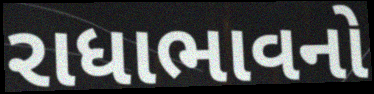
રાધાભાવનો